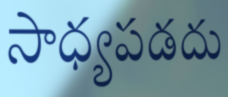
సాధ్యపడదు